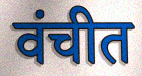
वंचीत